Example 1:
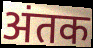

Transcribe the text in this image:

अंतक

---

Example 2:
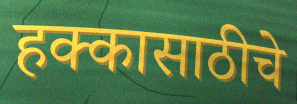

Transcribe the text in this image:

हक्कासाठीचे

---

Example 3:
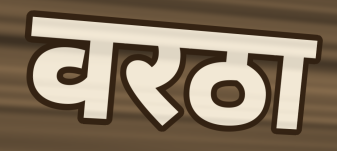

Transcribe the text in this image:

वरठा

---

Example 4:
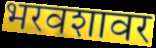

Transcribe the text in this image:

भरवशावर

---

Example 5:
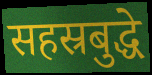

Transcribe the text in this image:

सहस्रबुद्धे